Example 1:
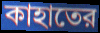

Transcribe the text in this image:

কাহাতের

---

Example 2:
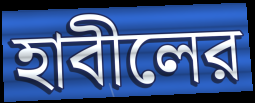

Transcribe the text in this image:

হাবীলের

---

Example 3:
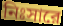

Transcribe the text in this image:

নিঃসারে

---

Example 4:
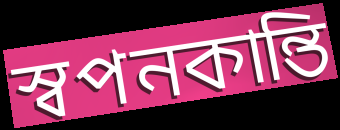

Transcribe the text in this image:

স্বপনকান্তি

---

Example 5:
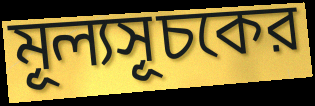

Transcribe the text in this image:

মূল্যসূচকের